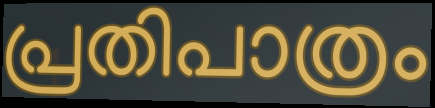
പ്രതിപാത്രം